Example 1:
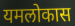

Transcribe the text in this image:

यमलोकास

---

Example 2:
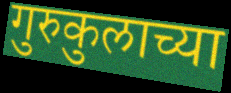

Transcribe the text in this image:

गुरुकुलाच्या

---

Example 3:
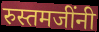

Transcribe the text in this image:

रुस्तमजींनी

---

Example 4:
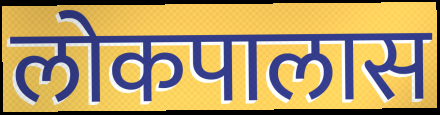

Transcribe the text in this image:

लोकपालास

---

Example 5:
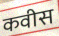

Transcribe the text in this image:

कवीस